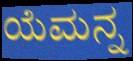
ಯೆಮನ್ನ